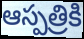
ఆస్పత్రికి